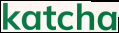
katcha